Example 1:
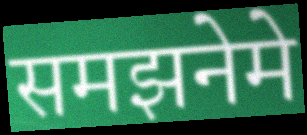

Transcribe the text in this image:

समझनेमे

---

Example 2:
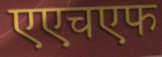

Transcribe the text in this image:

एएचएफ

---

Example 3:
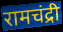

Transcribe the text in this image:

रामचंद्री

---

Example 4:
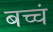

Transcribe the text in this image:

बच्चं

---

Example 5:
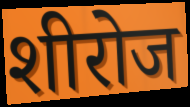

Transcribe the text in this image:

शीरोज